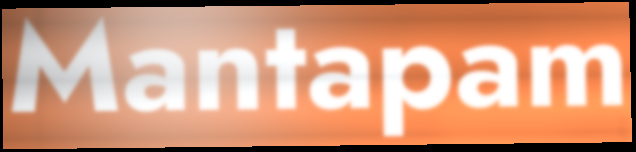
Mantapam